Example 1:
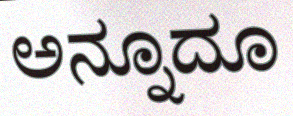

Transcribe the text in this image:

ಅನ್ನೂದೂ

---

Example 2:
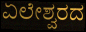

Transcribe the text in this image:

ಏಲೇಶ್ವರದ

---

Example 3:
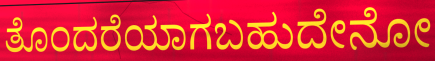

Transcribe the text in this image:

ತೊಂದರೆಯಾಗಬಹುದೇನೋ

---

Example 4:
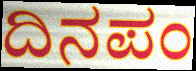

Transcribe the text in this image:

ದಿನಪಂ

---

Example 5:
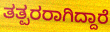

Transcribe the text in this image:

ತತ್ಪರರಾಗಿದ್ದಾರೆ